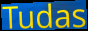
Tudas